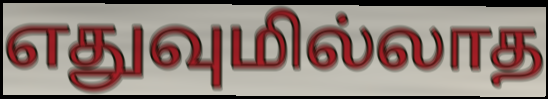
எதுவுமில்லாத